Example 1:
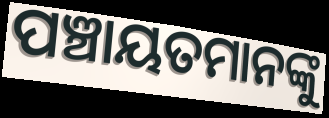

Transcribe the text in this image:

ପଞ୍ଚାୟତମାନଙ୍କୁ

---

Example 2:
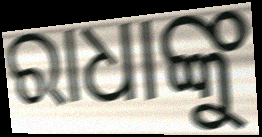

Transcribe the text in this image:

ରାଧାଙ୍କୁ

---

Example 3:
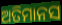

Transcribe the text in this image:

ଅତିମାନସ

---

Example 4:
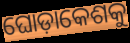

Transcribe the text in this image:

ଘୋଡ଼ାକେଶକୁ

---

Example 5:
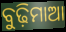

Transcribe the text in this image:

ବୁଢ଼ିମାଆ